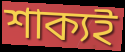
শাক্যই